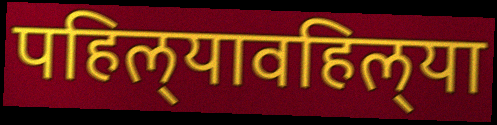
पहिल्यावहिल्या